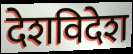
देशविदेश